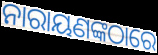
ନାରାୟଣଙ୍କଠାରେ